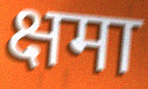
क्षमा